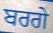
ਬਰਗੇ